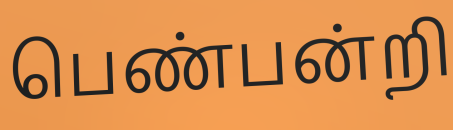
பெண்பன்றி